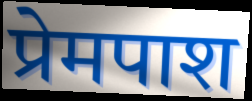
प्रेमपाश